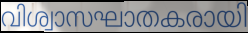
വിശ്വാസഘാതകരായി